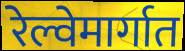
रेल्वेमार्गात